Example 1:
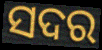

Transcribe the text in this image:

ସଦର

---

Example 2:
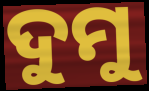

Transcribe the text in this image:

ଦୁମୁ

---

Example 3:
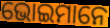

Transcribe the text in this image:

ଭୋଇମାନେ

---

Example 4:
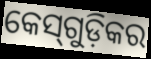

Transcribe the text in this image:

କେସ୍‌ଗୁଡ଼ିକର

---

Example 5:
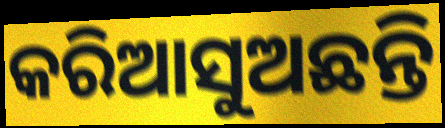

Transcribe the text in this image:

କରିଆସୁଅଛନ୍ତି